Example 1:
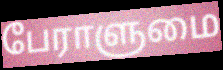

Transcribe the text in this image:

பேராளுமை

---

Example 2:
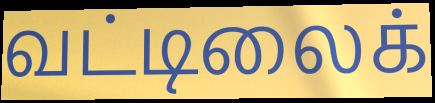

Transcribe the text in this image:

வட்டிலைக்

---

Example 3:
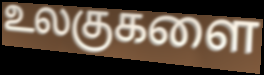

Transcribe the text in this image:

உலகுகளை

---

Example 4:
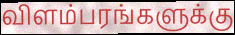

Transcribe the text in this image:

விளம்பரங்களுக்கு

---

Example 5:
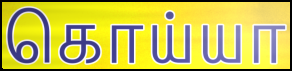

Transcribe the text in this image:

கொய்யா